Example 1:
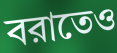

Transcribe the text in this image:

বরাতেও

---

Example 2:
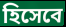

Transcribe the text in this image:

হিসেবে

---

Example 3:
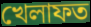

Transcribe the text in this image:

খেলাফত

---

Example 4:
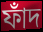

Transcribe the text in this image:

ফাঁদ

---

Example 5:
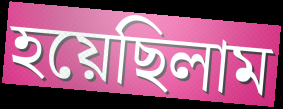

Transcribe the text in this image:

হয়েছিলাম